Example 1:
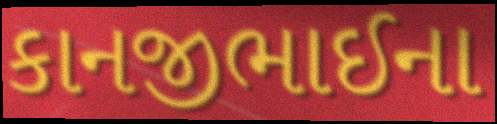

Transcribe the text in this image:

કાનજીભાઈના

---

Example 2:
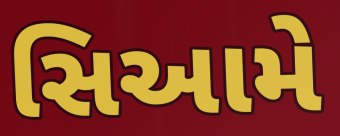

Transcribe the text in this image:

સિઆમે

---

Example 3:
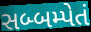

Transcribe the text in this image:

સબ્બમ્પેતં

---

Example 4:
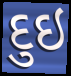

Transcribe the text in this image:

દુઇ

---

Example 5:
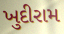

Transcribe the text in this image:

ખુદીરામ